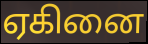
ஏகினை